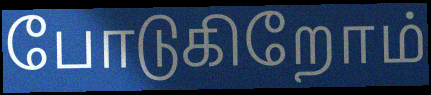
போடுகிறோம்